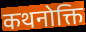
कथनोक्ति